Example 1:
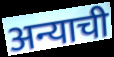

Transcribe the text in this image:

अन्याची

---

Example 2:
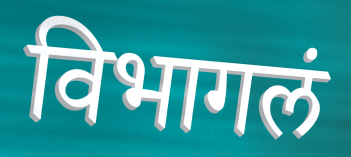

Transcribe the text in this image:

विभागलं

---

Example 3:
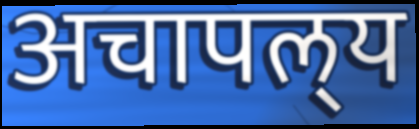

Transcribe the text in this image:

अचापल्य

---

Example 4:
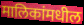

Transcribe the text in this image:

मालिकांमधील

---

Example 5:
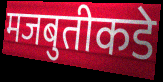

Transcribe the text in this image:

मजबुतीकडे